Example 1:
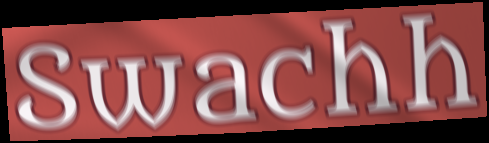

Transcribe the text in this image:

Swachh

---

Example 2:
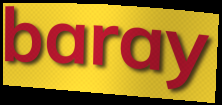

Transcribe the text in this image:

baray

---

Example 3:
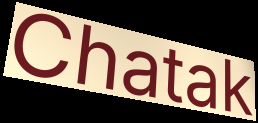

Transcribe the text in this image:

Chatak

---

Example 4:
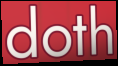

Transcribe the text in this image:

doth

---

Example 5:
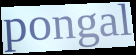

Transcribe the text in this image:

pongal